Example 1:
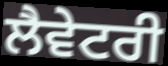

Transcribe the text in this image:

ਲੈਵੇਟਰੀ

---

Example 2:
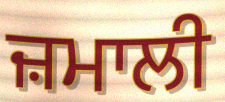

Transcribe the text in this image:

ਜ਼ਮਾਲੀ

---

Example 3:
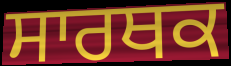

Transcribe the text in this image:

ਸਾਰਥਕ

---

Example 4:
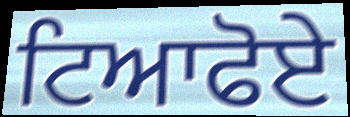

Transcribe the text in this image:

ਟਿਆਫੋਏ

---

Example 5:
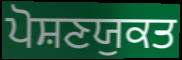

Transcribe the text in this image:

ਪੋਸ਼ਣਯੁਕਤ